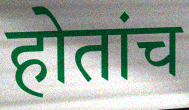
होतांच